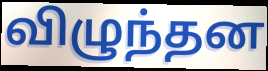
விழுந்தன